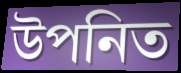
উপনিত